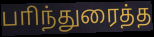
பரிந்துரைத்த